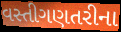
વસ્તીગણતરીના